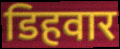
डिहवार